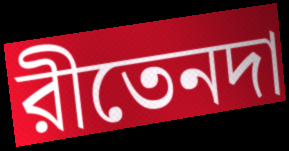
রীতেনদা